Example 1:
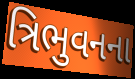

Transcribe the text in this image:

ત્રિભુવનના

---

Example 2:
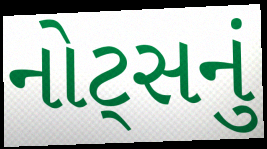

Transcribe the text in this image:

નોટ્સનું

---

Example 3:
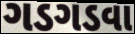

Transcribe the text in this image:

ગડગડવા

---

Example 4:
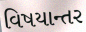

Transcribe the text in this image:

વિષયાન્તર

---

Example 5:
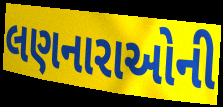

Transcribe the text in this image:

લણનારાઓની